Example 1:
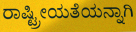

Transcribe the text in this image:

ರಾಷ್ಟ್ರೀಯತೆಯನ್ನಾಗಿ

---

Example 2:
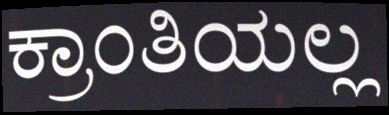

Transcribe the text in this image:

ಕ್ರಾಂತಿಯಲ್ಲ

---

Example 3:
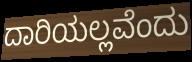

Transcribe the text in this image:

ದಾರಿಯಲ್ಲವೆಂದು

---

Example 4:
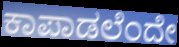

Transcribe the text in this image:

ಕಾಪಾಡಲೆಂದೇ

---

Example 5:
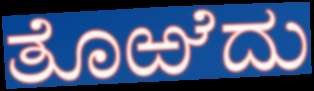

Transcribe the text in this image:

ತೊಱೆದು